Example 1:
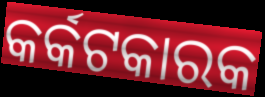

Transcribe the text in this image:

କର୍କଟକାରକ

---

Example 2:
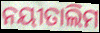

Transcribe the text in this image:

ନୟୀତାଲିମ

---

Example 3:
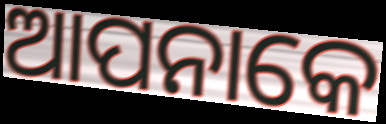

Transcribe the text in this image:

ଆପନାକେ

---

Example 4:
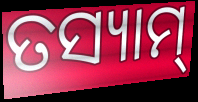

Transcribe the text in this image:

ତସ୍ୟାମ୍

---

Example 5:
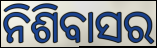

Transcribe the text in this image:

ନିଶିବାସର